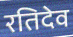
रतिदेव